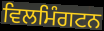
ਵਿਲਮਿੰਗਟਨ